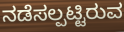
ನಡೆಸಲ್ಪಟ್ಟಿರುವ